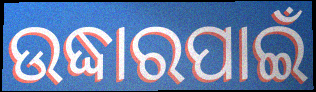
ଉଦ୍ଧାରପାଇଁ